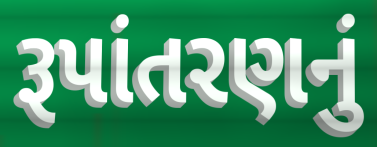
રૂપાંતરણનું